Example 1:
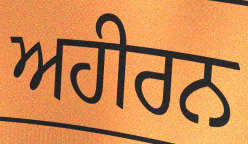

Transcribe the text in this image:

ਅਹੀਰਨ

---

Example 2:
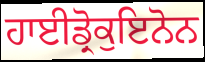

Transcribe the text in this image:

ਹਾਈਡ੍ਰੋਕੁਇਨੋਨ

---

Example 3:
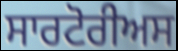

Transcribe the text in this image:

ਸਾਰਟੋਰੀਅਸ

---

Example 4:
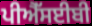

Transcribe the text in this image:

ਪੀਐੱਸਈਬੀ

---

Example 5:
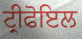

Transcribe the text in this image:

ਟ੍ਰੀਫੋਇਲ